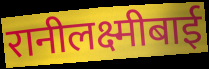
रानीलक्ष्मीबाई